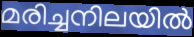
മരിച്ചനിലയിൽ